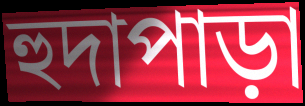
হুদাপাড়া